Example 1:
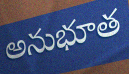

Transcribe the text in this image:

అనుభూత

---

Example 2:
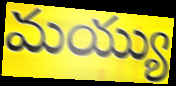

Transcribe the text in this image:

మయ్యు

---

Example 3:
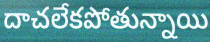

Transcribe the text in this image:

దాచలేకపోతున్నాయి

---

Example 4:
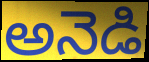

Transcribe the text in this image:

అనెడి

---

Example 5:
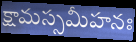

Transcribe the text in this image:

క్షామస్సమీహనః